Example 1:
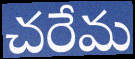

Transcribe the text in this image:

చరేమ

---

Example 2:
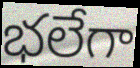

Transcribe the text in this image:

భలేగా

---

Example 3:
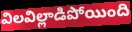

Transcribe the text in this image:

విలవిల్లాడిపోయింది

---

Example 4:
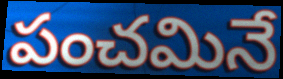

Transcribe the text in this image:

పంచమినే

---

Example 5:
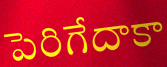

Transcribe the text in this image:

పెరిగేదాకా